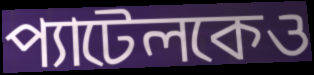
প্যাটেলকেও